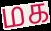
மக